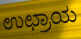
ಉಛ್ರಾಯ